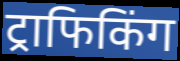
ट्राफिकिंग